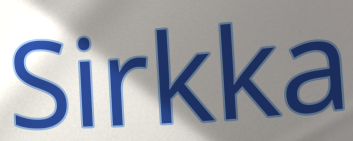
Sirkka